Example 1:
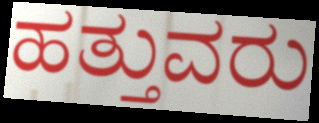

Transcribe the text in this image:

ಹತ್ತುವರು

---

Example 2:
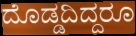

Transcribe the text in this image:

ದೊಡ್ಡದಿದ್ದರೂ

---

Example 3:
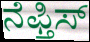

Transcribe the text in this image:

ನೆಫ್ತಿಸ್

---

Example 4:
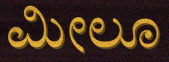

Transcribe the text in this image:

ಮೀಲೂ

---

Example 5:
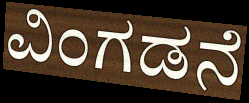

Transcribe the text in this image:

ವಿಂಗಡನೆ